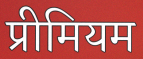
प्रीमियम